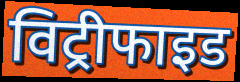
विट्रीफाइड